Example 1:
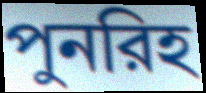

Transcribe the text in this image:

পুনরিহ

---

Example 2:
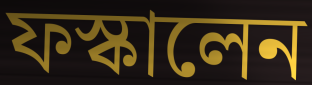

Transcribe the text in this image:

ফস্কালেন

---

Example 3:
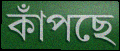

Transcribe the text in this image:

কাঁপছে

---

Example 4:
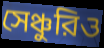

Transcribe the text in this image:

সেঞ্চুরিও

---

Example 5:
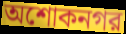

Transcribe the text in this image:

অশোকনগর